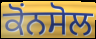
ਕੋਂਨਸੋਲ